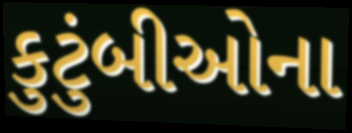
કુટુંબીઓના